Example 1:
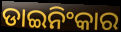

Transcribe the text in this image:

ଡାଇନିଂକାର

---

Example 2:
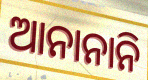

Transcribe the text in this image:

ଆନାନାନି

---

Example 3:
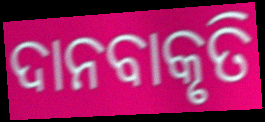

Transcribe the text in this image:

ଦାନବାକୃତି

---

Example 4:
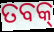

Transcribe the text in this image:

ତବକ୍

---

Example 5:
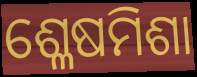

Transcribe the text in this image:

ଶ୍ଳେଷମିଶା